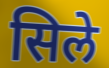
सिले